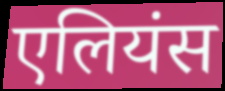
एलियंस